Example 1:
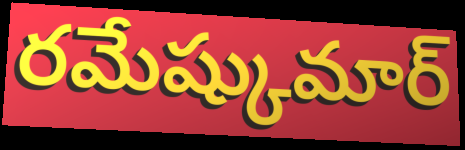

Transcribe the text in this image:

రమేష్కుమార్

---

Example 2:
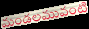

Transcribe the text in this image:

మండలమువంటి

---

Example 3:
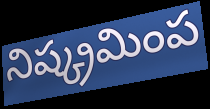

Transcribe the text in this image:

నిష్క్రమింప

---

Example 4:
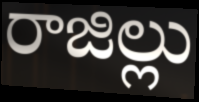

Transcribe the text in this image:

రాజిల్లు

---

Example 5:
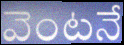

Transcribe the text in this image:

వెంటనే